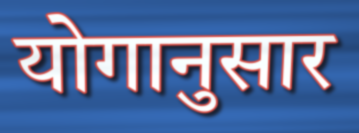
योगानुसार